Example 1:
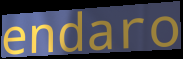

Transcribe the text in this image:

endaro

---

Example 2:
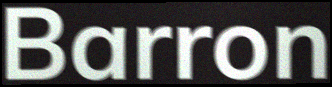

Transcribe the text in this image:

Barron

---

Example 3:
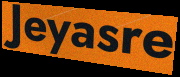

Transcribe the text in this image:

Jeyasre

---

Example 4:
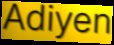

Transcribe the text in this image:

Adiyen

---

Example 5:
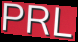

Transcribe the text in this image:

PRL